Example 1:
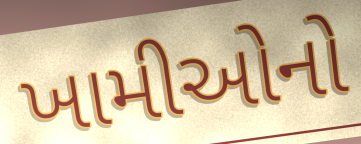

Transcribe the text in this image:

ખામીઓનો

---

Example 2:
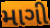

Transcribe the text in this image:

માગી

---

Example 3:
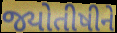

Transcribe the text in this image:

જ્યોતીષીને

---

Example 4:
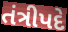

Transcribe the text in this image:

તંત્રીપદે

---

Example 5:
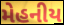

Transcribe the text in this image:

મેહનીય